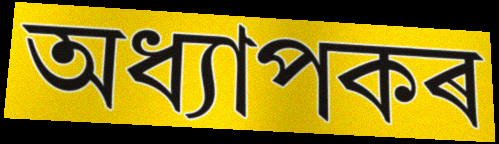
অধ্যাপকৰ